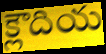
క్లౌదియ